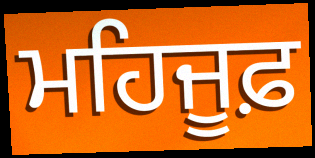
ਮਹਿਜੂਫ਼